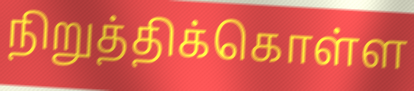
நிறுத்திக்கொள்ள